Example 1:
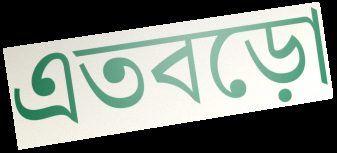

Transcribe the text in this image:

এতবড়ো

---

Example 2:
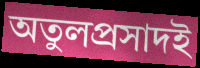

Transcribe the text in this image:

অতুলপ্রসাদই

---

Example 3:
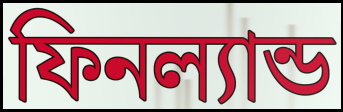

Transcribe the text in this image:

ফিনল্যান্ড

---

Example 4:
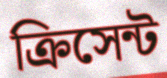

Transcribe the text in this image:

ক্রিসেন্ট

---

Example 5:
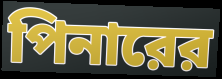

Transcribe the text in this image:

পিনারের